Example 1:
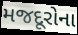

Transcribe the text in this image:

મજદૂરોના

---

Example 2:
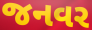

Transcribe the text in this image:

જનવર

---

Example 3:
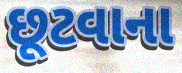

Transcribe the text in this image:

છૂટવાના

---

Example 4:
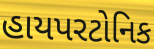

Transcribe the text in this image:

હાયપરટોનિક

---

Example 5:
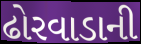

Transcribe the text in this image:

ઢોરવાડાની